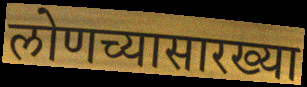
लोणच्यासारख्या